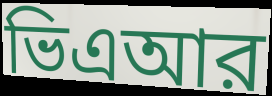
ভিএআর